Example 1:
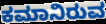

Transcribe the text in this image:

ಕಮಾನಿರುವ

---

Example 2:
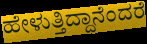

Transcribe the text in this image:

ಹೇಳುತ್ತಿದ್ದಾನೆಂದರೆ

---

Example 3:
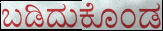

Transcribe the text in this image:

ಬಡಿದುಕೊಂಡ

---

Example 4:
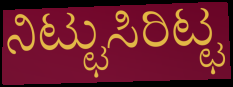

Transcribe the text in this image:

ನಿಟ್ಟುಸಿರಿಟ್ಟ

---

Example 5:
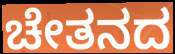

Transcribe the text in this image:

ಚೇತನದ